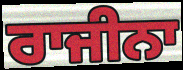
ਰਾਜੀਨਾ